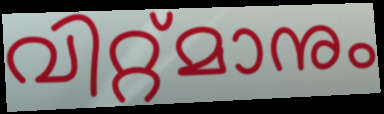
വിറ്റ്മാനും